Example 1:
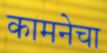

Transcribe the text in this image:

कामनेचा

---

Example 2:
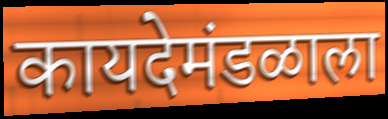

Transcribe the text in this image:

कायदेमंडळाला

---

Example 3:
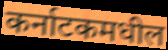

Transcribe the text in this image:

कर्नाटकमधील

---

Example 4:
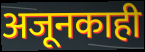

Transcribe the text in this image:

अजूनकाही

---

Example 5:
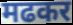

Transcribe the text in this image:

मढकर